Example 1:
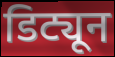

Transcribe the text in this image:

डिट्यून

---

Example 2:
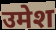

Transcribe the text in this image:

उमेश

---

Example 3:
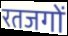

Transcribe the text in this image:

रतजगों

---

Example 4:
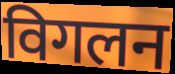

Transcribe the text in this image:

विगलन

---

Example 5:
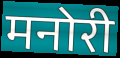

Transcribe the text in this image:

मनोरी